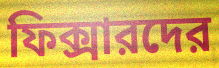
ফিক্সারদের